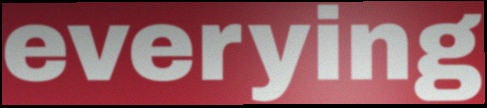
everying